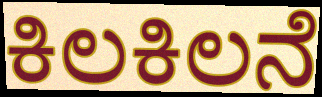
ಕಿಲಕಿಲನೆ